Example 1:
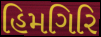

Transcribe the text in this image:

હિમગિરિ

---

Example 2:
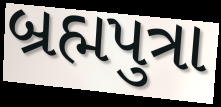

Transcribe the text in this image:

બ્રહ્મપુત્રા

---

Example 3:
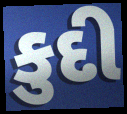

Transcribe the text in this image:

કુદી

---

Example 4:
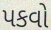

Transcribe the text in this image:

પકવો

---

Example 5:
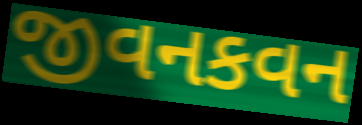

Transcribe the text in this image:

જીવનકવન